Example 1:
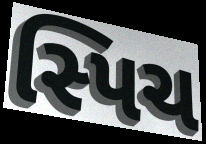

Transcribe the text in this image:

સ્પિચ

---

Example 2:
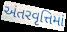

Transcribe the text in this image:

અંતરવૃત્તિમાં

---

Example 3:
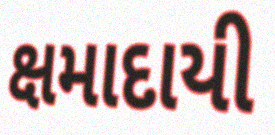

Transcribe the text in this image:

ક્ષમાદાયી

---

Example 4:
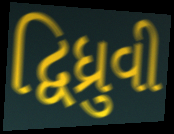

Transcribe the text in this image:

દ્વિધ્રુવી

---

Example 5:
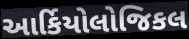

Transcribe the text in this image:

આર્કિયોલોજિકલ